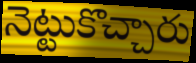
నెట్టుకొచ్చారు